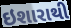
ઇશારાથી